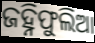
ଜହ୍ନିଫୁଲିଆ